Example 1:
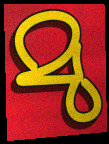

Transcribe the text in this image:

മു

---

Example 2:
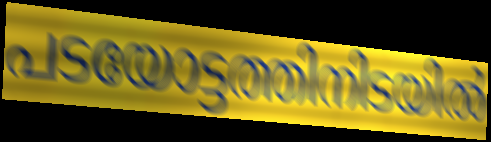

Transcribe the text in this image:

പടയോട്ടത്തിനിടയിൽ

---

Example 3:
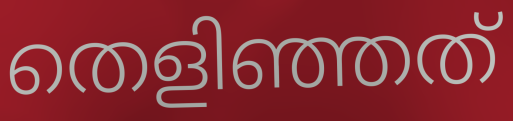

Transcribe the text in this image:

തെളിഞ്ഞത്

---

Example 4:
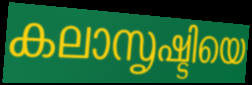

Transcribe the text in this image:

കലാസൃഷ്ടിയെ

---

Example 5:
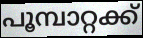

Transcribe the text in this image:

പൂമ്പാറ്റക്ക്